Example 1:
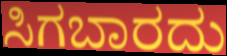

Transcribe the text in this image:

ಸಿಗಬಾರದು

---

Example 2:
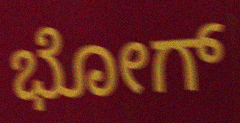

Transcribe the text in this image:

ಭೋಗ್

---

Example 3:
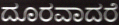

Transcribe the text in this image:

ದೂರವಾದರೆ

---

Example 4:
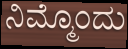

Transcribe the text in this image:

ನಿಮ್ಮೊಂದು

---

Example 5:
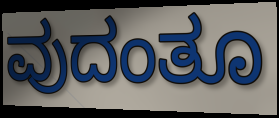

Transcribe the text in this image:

ವುದಂತೂ